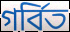
গর্বিত